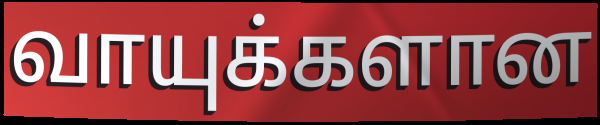
வாயுக்களான